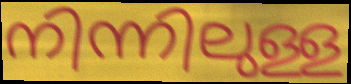
നിന്നിലുള്ള